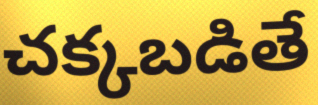
చక్కబడితే